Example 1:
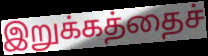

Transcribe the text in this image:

இறுக்கத்தைச்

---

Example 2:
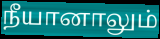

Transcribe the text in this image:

நீயானாலும்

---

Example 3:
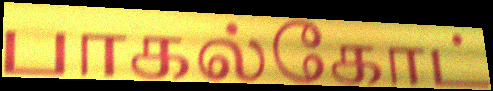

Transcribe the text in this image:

பாகல்கோட்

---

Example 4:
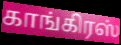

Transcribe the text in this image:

காங்கிரஸ்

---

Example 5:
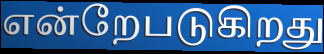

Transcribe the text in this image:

என்றேபடுகிறது